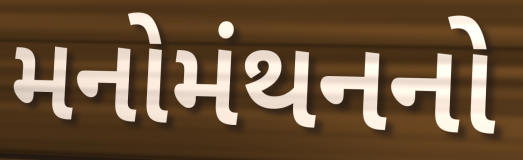
મનોમંથનનો